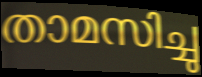
താമസിച്ചു